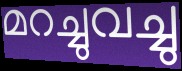
മറച്ചുവച്ചു